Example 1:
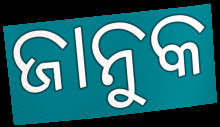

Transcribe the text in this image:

ଜାନୁକ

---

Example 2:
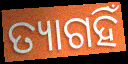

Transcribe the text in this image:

ତ୍ୟାଗହିଁ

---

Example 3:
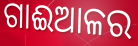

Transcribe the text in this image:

ଗାଈଆଳର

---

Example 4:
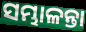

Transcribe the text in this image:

ସମ୍ଭାଳନ୍ତା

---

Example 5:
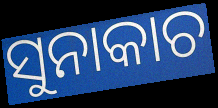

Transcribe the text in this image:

ସୁନାକାଚ